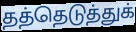
தத்தெடுத்துக்